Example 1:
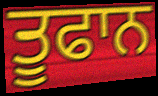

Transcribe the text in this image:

ਤੂਫਾਨ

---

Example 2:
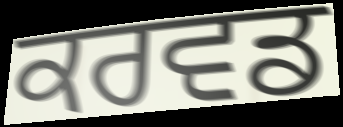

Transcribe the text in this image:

ਕਰਵਡ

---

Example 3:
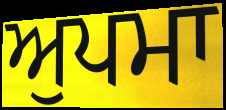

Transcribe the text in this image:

ਅੁਪਮਾ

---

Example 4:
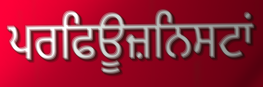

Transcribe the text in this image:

ਪਰਫਿਊਜ਼ਨਿਸਟਾਂ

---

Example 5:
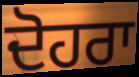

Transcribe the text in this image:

ਦੋਹਰਾ